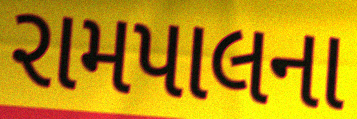
રામપાલના